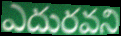
ఎదురవని